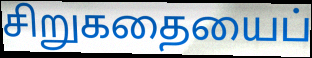
சிறுகதையைப்